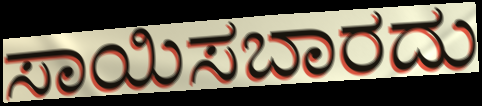
ಸಾಯಿಸಬಾರದು